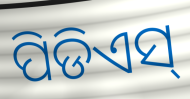
ପିଡିଏସ୍